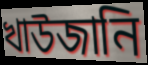
খাউজানি